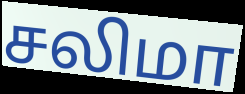
சலிமா